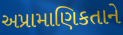
અપ્રામાણિકતાને